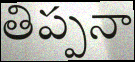
తిప్పనా